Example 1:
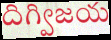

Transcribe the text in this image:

దిగ్విజయ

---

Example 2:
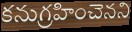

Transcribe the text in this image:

కనుగ్రహించెనని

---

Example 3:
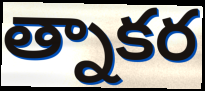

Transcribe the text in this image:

త్నాకర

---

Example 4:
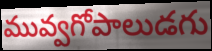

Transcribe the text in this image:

మువ్వగోపాలుడగు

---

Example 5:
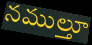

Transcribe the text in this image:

నముల్తూ